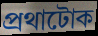
প্ৰথাটোক